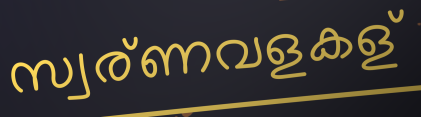
സ്വര്ണവളകള്